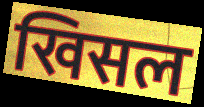
खिसल